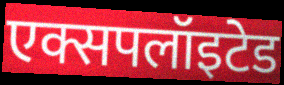
एक्सपलॉइटेड